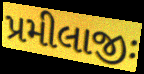
પ્રમીલાજીઃ